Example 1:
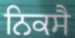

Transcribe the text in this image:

ਨਿਕਸੈ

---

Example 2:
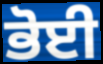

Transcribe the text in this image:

ਭੋਈ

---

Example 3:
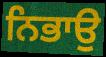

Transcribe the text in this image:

ਨਿਭਾਉ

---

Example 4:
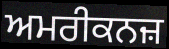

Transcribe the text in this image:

ਅਮਰੀਕਨਜ਼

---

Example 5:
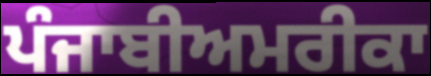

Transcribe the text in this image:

ਪੰਜਾਬੀਅਮਰੀਕਾ